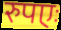
रुपएः